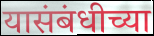
यासंबंधीच्या